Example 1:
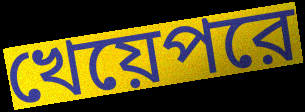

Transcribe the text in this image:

খেয়েপরে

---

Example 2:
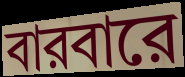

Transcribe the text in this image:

বারবারে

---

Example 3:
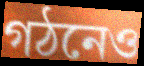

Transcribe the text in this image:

গঠনেও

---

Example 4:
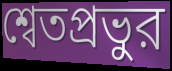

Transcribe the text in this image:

শ্বেতপ্রভুর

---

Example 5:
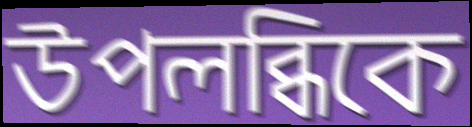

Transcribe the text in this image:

উপলব্ধিকে